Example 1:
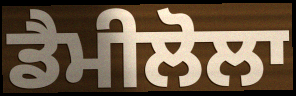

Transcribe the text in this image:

ਡੈਮੀਲੋਲਾ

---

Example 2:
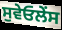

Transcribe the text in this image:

ਸੁਵੇਓਲੇਂਸ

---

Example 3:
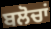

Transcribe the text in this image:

ਬਲੋਚਾਂ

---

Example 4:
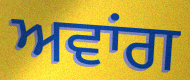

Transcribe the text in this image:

ਅਵਾਂਗ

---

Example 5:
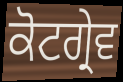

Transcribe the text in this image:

ਕੋਟਗ੍ਰੇਵ